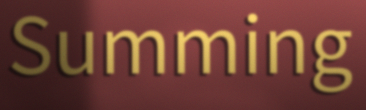
Summing